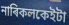
নাৰিকলকেইটা